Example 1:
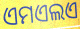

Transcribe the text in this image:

ଏମଏଲଏ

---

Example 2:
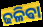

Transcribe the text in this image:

ଢଳିଵା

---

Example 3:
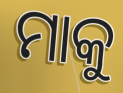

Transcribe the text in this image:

ମାକୁ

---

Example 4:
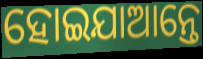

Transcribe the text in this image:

ହୋଇଯାଆନ୍ତେ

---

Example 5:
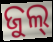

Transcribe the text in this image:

ଜୁଲ୍